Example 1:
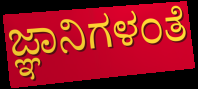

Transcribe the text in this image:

ಜ್ಞಾನಿಗಳಂತೆ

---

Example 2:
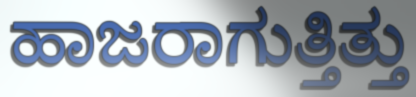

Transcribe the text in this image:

ಹಾಜರಾಗುತ್ತಿತ್ತು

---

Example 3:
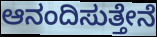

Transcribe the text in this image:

ಆನಂದಿಸುತ್ತೇನೆ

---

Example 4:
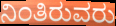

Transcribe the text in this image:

ನಿಂತಿರುವರು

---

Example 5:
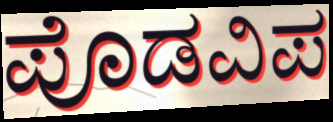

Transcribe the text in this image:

ಪೊಡವಿಪ